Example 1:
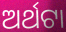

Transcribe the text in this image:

ଅର୍ଥଟା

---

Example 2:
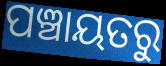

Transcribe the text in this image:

ପଞ୍ଚାୟତରୁ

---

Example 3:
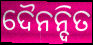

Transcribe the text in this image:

ଦୈନନ୍ଦିତ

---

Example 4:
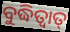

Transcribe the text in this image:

ବୁଦ୍ଧିତ୍ୱାତ୍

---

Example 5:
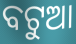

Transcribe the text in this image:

ବଟୁଆ